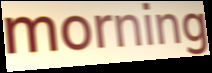
morning